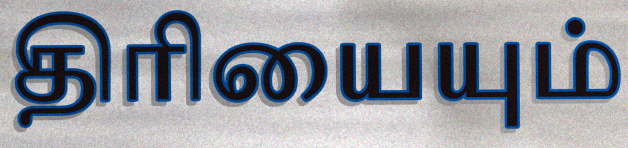
திரியையும்